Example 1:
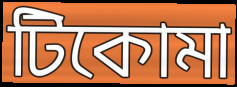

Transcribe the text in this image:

টিকোমা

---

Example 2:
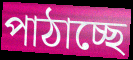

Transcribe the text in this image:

পাঠাচ্ছে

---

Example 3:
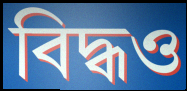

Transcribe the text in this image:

বিদ্ধও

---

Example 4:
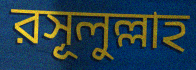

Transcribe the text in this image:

রসূলুল্লাহ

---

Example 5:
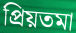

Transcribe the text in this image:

প্রিয়তমা